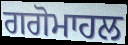
ਗਗੋਮਾਹਲ